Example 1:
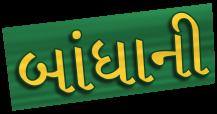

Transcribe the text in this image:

બાંધાની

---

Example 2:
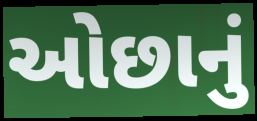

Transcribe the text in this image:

ઓછાનું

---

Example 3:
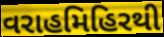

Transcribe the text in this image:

વરાહમિહિરથી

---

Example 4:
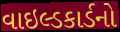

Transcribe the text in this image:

વાઇલ્ડકાર્ડનો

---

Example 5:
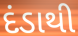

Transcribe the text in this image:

દંડાથી